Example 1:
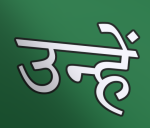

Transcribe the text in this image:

उन्‍हें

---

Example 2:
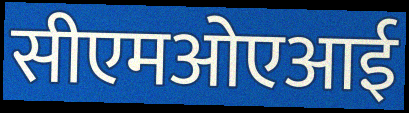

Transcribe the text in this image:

सीएमओएआई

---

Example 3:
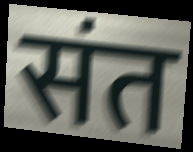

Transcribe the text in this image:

संत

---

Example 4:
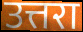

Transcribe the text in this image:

उत्तरा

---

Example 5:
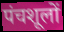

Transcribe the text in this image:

पंचशूलों